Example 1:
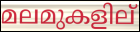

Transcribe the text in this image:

മലമുകളില്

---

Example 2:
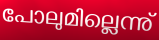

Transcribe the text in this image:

പോലുമില്ലെന്നു്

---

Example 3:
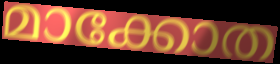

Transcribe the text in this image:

മാക്കോത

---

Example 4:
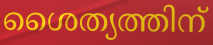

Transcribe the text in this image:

ശൈത്യത്തിന്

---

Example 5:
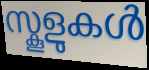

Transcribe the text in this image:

സ്കൂളുകൾ